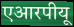
एआरपीयू